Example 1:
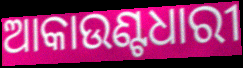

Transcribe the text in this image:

ଆକାଉଣ୍ଟଧାରୀ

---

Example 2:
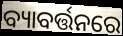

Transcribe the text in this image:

ବ୍ୟାବର୍ତ୍ତନରେ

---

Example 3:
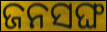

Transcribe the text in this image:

ଜନସଙ୍ଘ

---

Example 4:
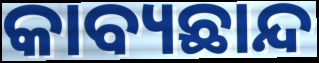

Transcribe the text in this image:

କାବ୍ୟଛାନ୍ଦ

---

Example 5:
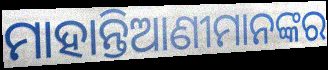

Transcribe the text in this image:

ମାହାନ୍ତିଆଣୀମାନଙ୍କର